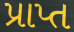
પ્રાપ્‍ત